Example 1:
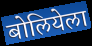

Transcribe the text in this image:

बोलियेला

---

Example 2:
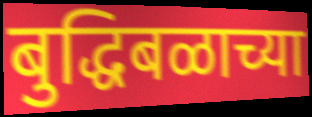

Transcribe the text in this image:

बुद्धिबळाच्या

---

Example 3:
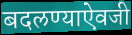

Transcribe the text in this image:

बदलण्याऐवजी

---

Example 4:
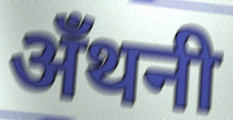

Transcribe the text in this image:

अँथनी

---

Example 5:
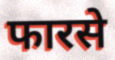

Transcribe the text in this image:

फारसे